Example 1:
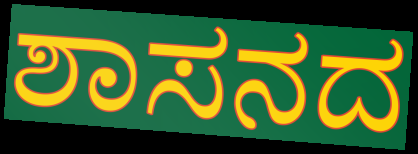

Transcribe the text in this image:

ಶಾಸನದ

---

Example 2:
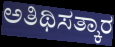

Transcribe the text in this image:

ಅತಿಥಿಸತ್ಕಾರ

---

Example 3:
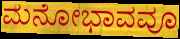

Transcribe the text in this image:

ಮನೋಭಾವವೂ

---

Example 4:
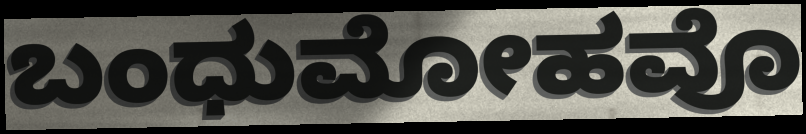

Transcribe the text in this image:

ಬಂಧುಮೋಹವೊ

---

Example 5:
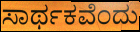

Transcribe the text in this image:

ಸಾರ್ಥಕವೆಂದು